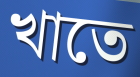
খাতে